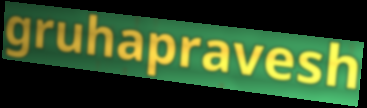
gruhapravesh